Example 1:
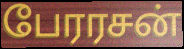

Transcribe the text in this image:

பேரரசன்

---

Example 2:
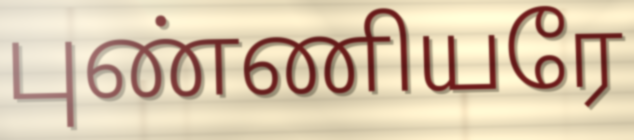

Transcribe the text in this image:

புண்ணியரே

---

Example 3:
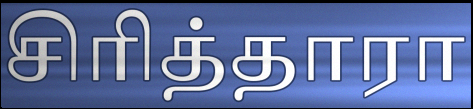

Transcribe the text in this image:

சிரித்தாரா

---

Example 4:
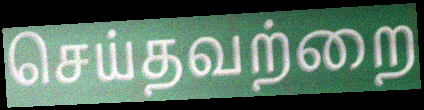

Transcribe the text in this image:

செய்தவற்றை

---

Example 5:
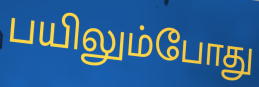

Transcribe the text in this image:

பயிலும்போது